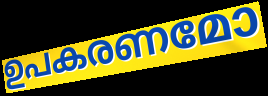
ഉപകരണമോ